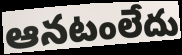
ఆనటంలేదు